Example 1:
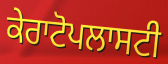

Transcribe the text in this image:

ਕੇਰਾਟੋਪਲਾਸਟੀ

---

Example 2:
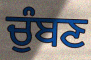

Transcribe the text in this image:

ਚੁੰਬਣ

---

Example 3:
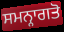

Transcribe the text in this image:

ਸਮਨ੍ਨਾਗਤੋ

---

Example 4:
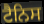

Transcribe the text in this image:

ਟੈਨਿਸ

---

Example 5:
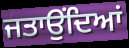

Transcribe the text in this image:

ਜਤਾਉੰਦਿਆਂ